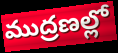
ముద్రణల్లో